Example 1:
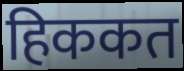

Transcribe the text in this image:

हिककत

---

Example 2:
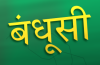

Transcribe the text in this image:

बंधूसी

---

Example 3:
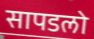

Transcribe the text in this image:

सापडलो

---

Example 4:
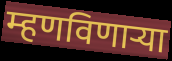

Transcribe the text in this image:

म्हणविणाऱ्या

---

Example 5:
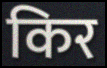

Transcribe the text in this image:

किर